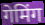
गेमिंग